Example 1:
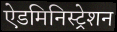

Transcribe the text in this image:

ऐडमिनिस्ट्रेशन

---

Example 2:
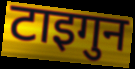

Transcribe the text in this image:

टाइगुन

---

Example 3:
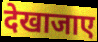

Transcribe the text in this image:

देखाजाए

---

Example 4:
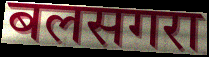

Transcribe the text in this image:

बलसगरा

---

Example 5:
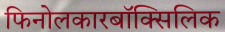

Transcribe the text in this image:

फिनोलकारबॉक्सिलिक